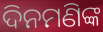
ଦିନମଣିଙ୍କ